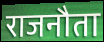
राजनौता